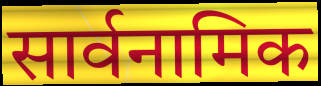
सार्वनामिक